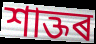
শাক্তৰ